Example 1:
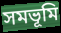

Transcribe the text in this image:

সমভূমি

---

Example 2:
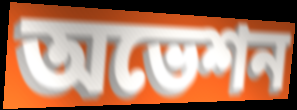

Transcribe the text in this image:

অভেশন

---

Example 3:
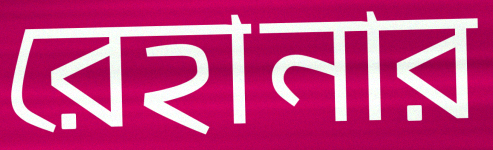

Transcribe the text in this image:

রেহানার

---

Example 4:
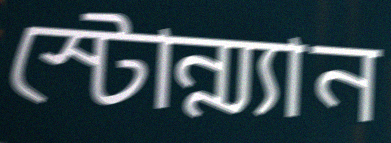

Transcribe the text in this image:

স্টোন্ম্যান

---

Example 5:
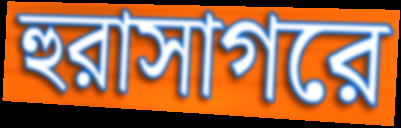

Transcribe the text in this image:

হুরাসাগরে